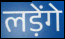
लड़ेंगे